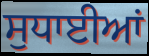
ਸੁਧਾਈਆਂ